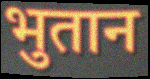
भुतान